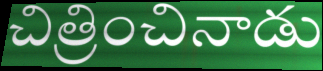
చిత్రించినాడు